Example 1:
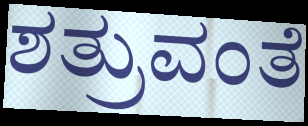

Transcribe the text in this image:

ಶತ್ರುವಂತೆ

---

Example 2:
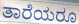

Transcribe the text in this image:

ತಾರೆಯರೂ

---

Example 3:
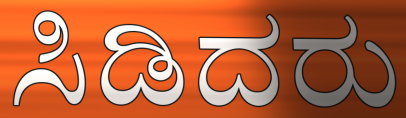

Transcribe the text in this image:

ಸಿಡಿದರು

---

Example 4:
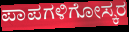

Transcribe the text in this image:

ಪಾಪಗಳಿಗೋಸ್ಕರ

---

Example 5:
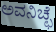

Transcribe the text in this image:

ಅವನಿಚ್ಛೆ